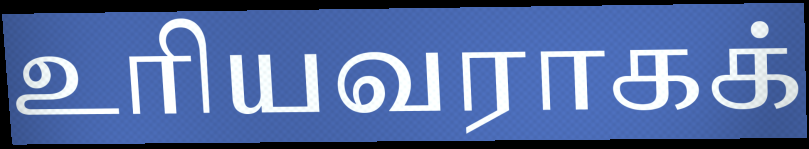
உரியவராகக்